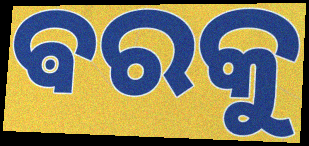
ଵରକୁ